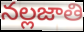
నల్లజాతి